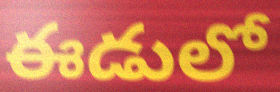
ఈడులో